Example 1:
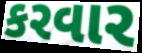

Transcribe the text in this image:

કરવાર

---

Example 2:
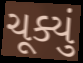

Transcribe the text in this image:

ચૂક્યું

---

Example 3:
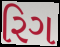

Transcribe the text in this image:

રિગ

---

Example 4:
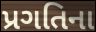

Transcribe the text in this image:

પ્રગતિના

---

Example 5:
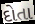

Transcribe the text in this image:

દોતા